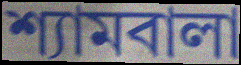
শ্যামবালা